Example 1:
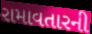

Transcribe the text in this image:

રામાવતારની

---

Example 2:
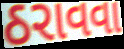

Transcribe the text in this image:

ઠરાવવા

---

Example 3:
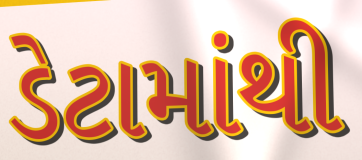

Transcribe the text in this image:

ડેટામાંથી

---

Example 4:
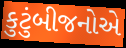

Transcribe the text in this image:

કુટુંબીજનોએ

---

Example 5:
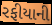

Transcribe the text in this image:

રફીયાની